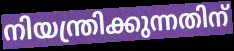
നിയന്ത്രിക്കുന്നതിന്